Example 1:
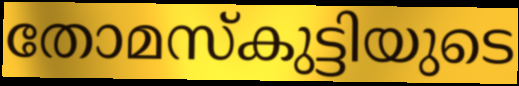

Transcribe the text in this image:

തോമസ്കുട്ടിയുടെ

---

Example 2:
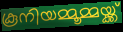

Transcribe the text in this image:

കൂനിയമ്മൂമ്മയ്ക്ക്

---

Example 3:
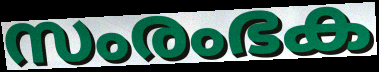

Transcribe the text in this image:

സംരംഭക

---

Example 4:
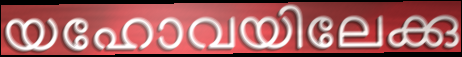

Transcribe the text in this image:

യഹോവയിലേക്കു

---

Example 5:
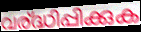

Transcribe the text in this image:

വര്ദ്ധിപ്പിക്കുക